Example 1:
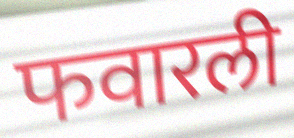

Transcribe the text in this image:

फवारली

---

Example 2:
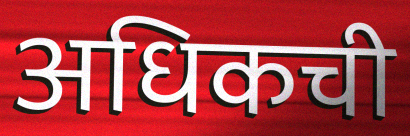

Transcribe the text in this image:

अधिकची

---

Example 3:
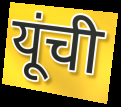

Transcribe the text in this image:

यूंची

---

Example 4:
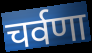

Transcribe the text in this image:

चर्वणा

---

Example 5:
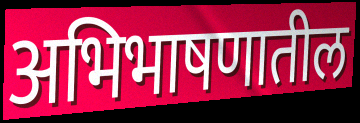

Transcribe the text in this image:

अभिभाषणातील